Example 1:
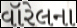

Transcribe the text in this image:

વૉરેલના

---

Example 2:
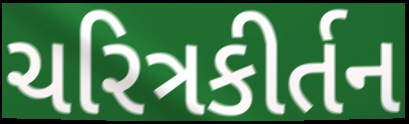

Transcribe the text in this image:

ચરિત્રકીર્તન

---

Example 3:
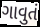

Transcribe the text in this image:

ગાવુતં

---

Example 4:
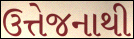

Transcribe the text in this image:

ઉત્તેજનાથી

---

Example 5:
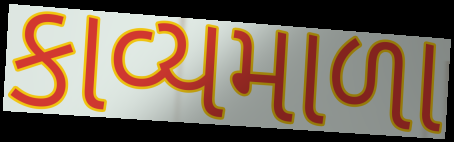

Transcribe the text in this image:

કાવ્યમાળા